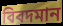
বিবদমান